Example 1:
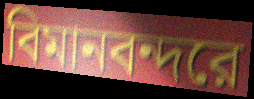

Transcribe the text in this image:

বিমানবন্দরে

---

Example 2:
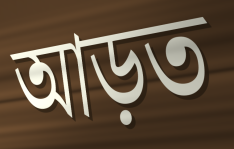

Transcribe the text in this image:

আড়ত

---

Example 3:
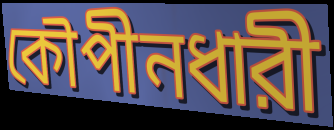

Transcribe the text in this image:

কৌপীনধারী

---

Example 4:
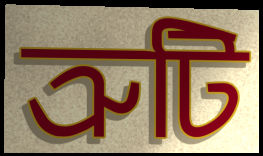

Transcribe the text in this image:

ত্রুটি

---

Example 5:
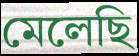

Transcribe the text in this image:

মেলেছি